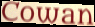
Cowan